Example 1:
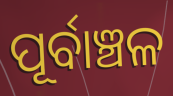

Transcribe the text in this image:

ପୂର୍ବାଞ୍ଚଳ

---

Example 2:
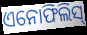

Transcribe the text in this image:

ଏନୋଫିଲିସ୍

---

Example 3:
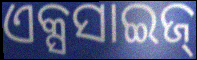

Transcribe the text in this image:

ଏକ୍ସସାଇଜ୍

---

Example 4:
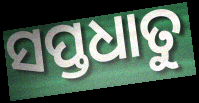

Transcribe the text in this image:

ସପ୍ତଧାତୁ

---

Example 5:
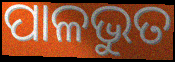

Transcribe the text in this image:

ପାଳଭୁତ